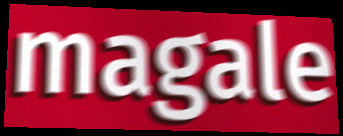
magale